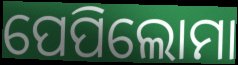
ପେପିଲୋମା